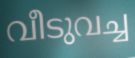
വീടുവച്ച